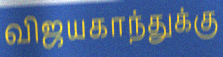
விஜயகாந்துக்கு